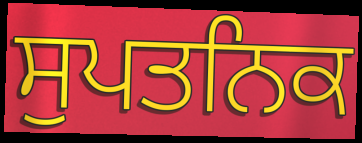
ਸੁਪਤਨਿਕ